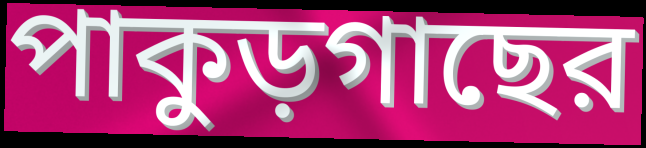
পাকুড়গাছের